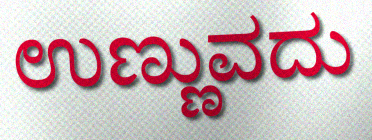
ಉಣ್ಣುವದು